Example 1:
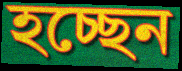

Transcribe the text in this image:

হচ্ছেন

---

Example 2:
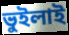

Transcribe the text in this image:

ভুইলাই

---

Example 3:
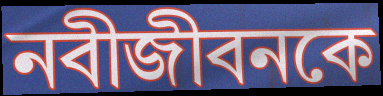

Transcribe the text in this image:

নবীজীবনকে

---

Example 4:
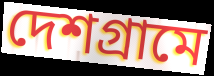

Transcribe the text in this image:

দেশগ্রামে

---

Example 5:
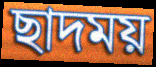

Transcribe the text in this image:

ছাদময়